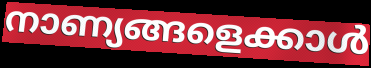
നാണ്യങ്ങളെക്കാൾ